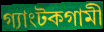
গ্যাংটকগামী